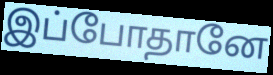
இப்போதானே